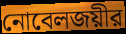
নোবেলজয়ীর